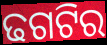
ଢଗଟିର